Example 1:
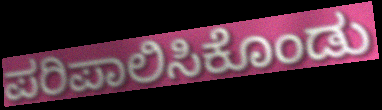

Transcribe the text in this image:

ಪರಿಪಾಲಿಸಿಕೊಂಡು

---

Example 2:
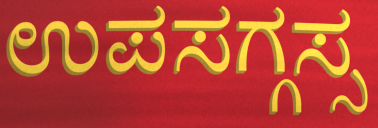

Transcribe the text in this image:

ಉಪಸಗ್ಗಸ್ಸ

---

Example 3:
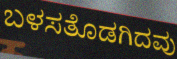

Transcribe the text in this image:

ಬಳಸತೊಡಗಿದವು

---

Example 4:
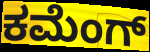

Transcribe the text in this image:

ಕಮೆಂಗ್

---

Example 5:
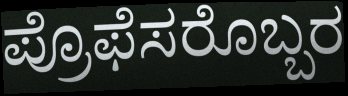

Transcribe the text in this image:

ಪ್ರೊಫೆಸರೊಬ್ಬರ